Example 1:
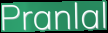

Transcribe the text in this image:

Pranlal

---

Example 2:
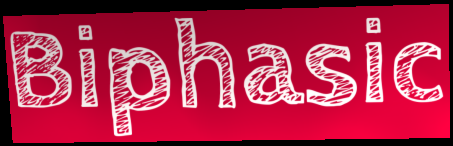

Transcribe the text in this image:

Biphasic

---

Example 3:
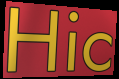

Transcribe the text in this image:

Hic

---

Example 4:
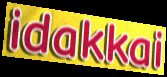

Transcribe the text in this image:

idakkai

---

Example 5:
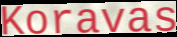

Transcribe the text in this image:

Koravas